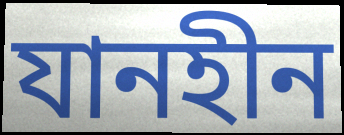
যানহীন